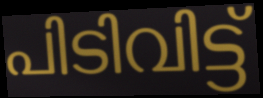
പിടിവിട്ട്